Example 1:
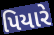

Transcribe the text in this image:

પિયારે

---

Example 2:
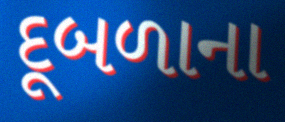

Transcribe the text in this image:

દૂબળાના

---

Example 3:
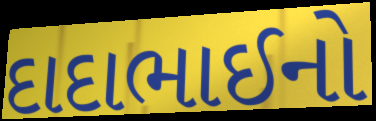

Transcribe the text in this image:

દાદાભાઈનો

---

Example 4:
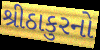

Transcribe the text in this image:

શ્રીઠાકુરનો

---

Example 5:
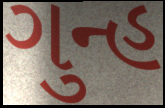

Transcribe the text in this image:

ગુન્હ